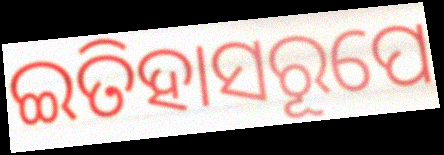
ଇତିହାସରୂପେ